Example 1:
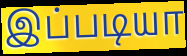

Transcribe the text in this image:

இப்படியா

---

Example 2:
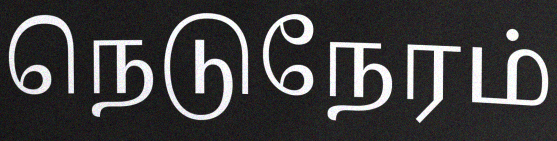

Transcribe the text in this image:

நெடுநேரம்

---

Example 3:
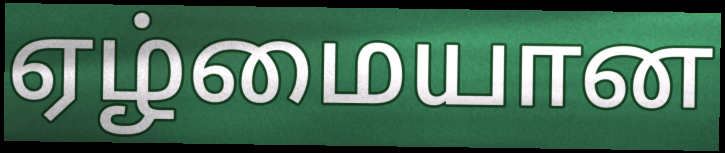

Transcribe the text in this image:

ஏழ்மையான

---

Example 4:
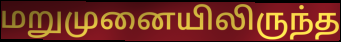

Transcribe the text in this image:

மறுமுனையிலிருந்த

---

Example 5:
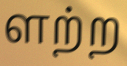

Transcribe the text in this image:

ளற்ற